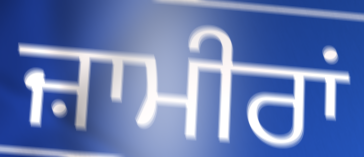
ਜ਼ਾਮੀਰਾਂ